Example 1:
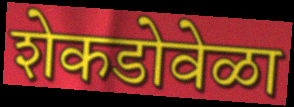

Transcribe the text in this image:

शेकडोवेळा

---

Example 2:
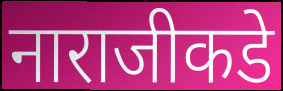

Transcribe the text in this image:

नाराजीकडे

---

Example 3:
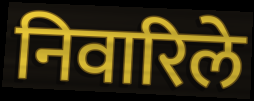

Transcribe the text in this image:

निवारिले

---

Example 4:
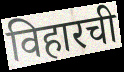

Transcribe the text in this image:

विहारची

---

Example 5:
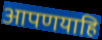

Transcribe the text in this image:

आपणयाहि